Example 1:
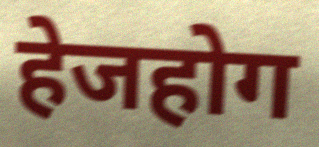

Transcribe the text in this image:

हेजहोग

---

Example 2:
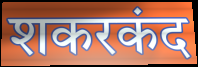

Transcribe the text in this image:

शकरकंद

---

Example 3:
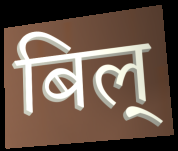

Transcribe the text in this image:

बिल्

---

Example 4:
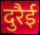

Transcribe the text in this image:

दुरैई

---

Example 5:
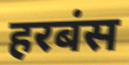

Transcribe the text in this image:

हरबंस